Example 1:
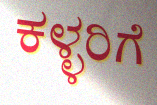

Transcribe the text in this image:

ಕಳ್ಳರಿಗೆ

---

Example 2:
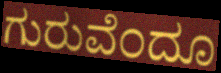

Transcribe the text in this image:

ಗುರುವೆಂದೂ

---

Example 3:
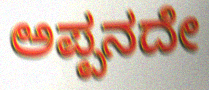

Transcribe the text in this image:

ಅಪ್ಪನದೇ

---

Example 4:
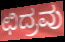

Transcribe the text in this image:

ಛಿದ್ರವು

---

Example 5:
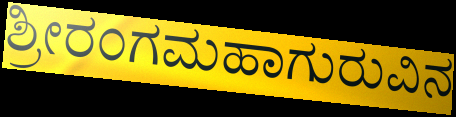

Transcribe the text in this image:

ಶ್ರೀರಂಗಮಹಾಗುರುವಿನ